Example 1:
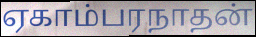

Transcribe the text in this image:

ஏகாம்பரநாதன்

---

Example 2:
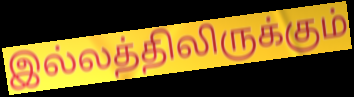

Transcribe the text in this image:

இல்லத்திலிருக்கும்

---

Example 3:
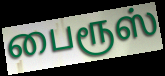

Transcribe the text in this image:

பைரூஸ்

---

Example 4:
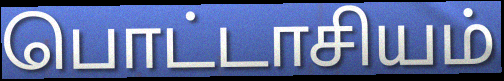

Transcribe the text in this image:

பொட்டாசியம்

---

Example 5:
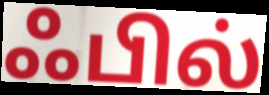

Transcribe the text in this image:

ஃபில்